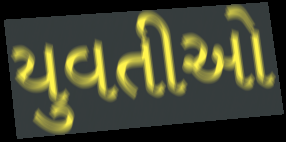
યુવતીઓ